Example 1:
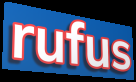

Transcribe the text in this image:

rufus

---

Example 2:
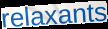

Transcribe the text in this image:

relaxants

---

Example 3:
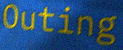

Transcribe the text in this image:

Outing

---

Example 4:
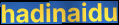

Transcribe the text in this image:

hadinaidu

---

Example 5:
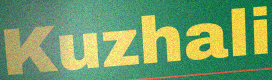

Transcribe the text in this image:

Kuzhali